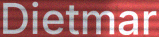
Dietmar